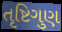
તૃષ્ટિગુણ